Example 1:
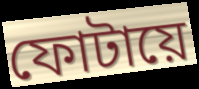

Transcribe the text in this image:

ফোটায়ে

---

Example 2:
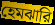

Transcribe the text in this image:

হেমঝারি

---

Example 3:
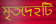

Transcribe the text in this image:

মৃতদেহটি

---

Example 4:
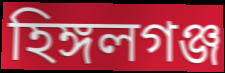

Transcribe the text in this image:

হিঙ্গলগঞ্জ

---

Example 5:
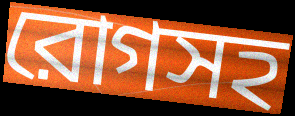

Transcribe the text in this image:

রোগসহ